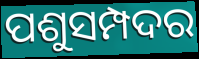
ପଶୁସମ୍ପଦର